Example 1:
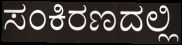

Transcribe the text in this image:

ಸಂಕಿರಣದಲ್ಲಿ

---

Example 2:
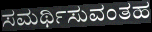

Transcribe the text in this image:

ಸಮರ್ಥಿಸುವಂತಹ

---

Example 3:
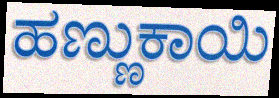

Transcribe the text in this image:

ಹಣ್ಣುಕಾಯಿ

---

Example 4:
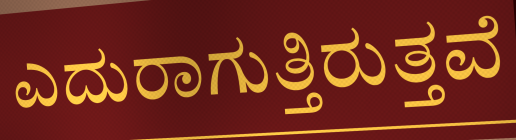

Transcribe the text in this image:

ಎದುರಾಗುತ್ತಿರುತ್ತವೆ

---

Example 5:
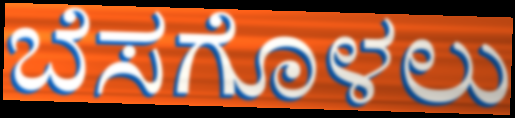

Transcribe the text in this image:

ಬೆಸಗೊಳಲು